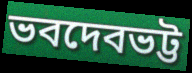
ভবদেবভট্ট